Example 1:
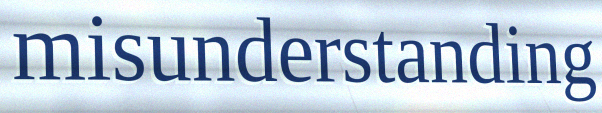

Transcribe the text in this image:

misunderstanding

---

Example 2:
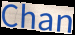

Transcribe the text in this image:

Chan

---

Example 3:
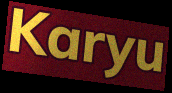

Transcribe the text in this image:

Karyu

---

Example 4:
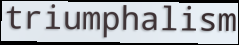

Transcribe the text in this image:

triumphalism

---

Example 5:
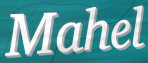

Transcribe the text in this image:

Mahel